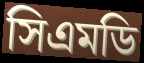
সিএমডি